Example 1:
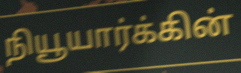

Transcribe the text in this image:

நியூயார்க்கின்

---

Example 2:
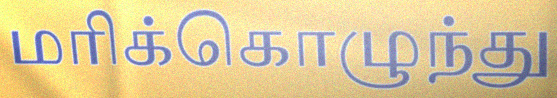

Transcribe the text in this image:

மரிக்கொழுந்து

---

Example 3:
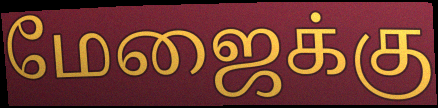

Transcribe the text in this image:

மேஜைக்கு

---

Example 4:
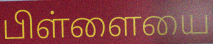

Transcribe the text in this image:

பிள்ளையை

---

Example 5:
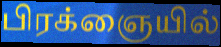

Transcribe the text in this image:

பிரக்ஞையில்